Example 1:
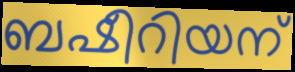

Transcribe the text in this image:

ബഷീറിയന്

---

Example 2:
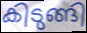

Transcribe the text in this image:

കിടുങ്ങി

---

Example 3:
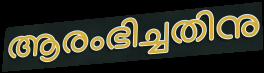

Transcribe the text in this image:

ആരംഭിച്ചതിനു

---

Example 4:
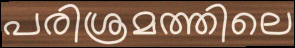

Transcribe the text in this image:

പരിശ്രമത്തിലെ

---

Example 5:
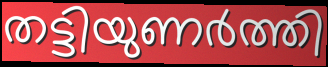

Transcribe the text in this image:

തട്ടിയുണർത്തി